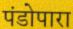
पंडोपारा